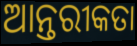
ଆନ୍ତରୀକତା